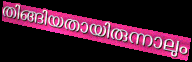
തിങ്ങിയതായിരുന്നാലും